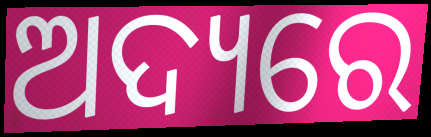
ଅଦ୍ୟରେ